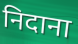
निदाना